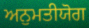
ਅਨੁਮਤੀਯੋਗ